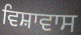
ਵਿਸ਼ਾਵਾਸ